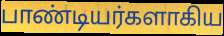
பாண்டியர்களாகிய